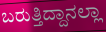
ಬರುತ್ತಿದ್ದಾನಲ್ಲಾ